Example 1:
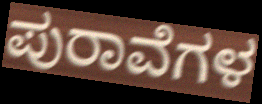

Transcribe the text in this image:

ಪುರಾವೆಗಳ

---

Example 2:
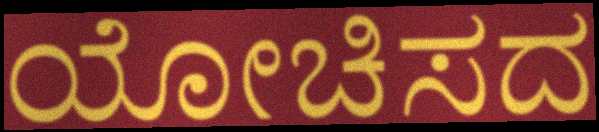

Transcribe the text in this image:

ಯೋಚಿಸದ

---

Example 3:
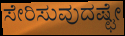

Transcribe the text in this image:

ಸೇರಿಸುವುದಷ್ಟೇ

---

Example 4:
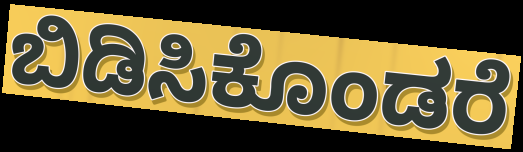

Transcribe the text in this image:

ಬಿಡಿಸಿಕೊಂಡರೆ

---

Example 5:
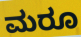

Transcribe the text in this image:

ಮರೂ